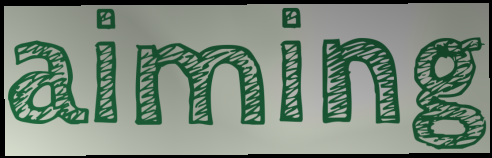
aiming